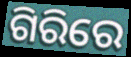
ଗିରିରେ